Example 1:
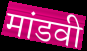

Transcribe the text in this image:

मांडवी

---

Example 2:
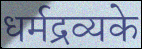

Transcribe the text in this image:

धर्मद्रव्यके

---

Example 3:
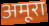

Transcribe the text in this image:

अमूरा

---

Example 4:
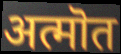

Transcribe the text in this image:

अत्मॊत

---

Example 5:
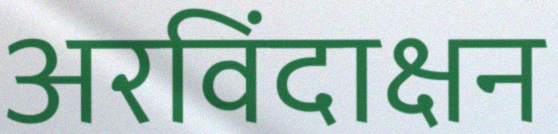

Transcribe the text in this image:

अरविंदाक्षन